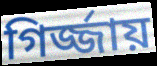
গির্জ্জায়